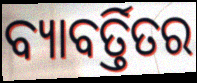
ବ୍ୟାବର୍ତ୍ତିତର